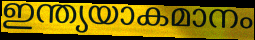
ഇന്ത്യയാകമാനം